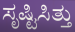
ಸೃಷ್ಟಿಸಿತ್ತು